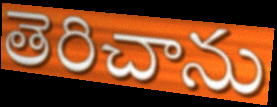
తెరిచాను